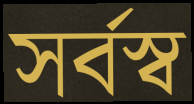
সৰ্বস্ব